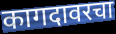
कागदावरचा